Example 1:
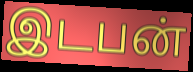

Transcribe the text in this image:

இடபன்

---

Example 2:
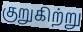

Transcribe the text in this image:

குறுகிற்று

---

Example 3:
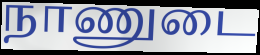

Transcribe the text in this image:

நாணுடை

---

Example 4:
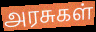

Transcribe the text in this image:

அரசுகள்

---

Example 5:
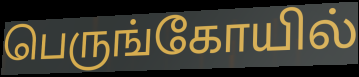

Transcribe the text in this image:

பெருங்கோயில்